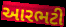
આરભટી